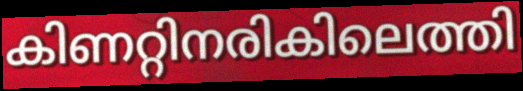
കിണറ്റിനരികിലെത്തി